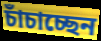
চাঁচাচ্ছেন